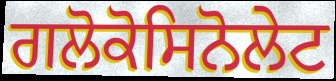
ਗਲੋਕੋਸਿਨੋਲੇਟ